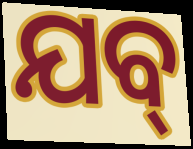
ଯବ୍